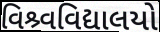
વિશ્ર્વવિદ્યાલયો